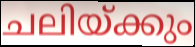
ചലിയ്ക്കും